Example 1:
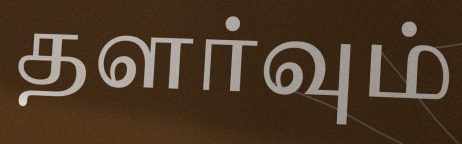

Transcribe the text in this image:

தளர்வும்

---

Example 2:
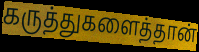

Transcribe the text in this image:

கருத்துகளைத்தான்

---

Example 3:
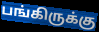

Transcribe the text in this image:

பங்கிருக்கு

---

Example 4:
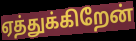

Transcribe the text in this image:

ஏத்துக்கிறேன்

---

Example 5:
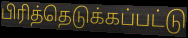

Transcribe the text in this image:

பிரித்தெடுக்கப்பட்டு